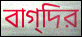
বাগ্‌দির